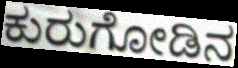
ಕುರುಗೋಡಿನ